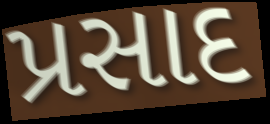
પ્રસાદ